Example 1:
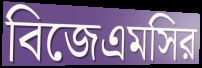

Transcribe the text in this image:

বিজেএমসির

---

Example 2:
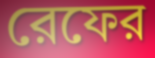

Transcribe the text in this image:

রেফের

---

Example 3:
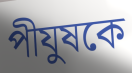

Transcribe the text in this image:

পীযুষকে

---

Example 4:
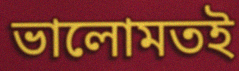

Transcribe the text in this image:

ভালোমতই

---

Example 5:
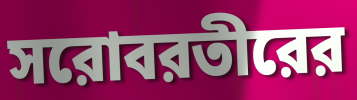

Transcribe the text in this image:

সরোবরতীরের